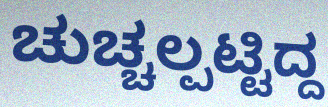
ಚುಚ್ಚಲ್ಪಟ್ಟಿದ್ದ